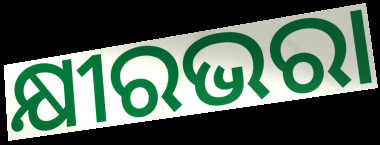
କ୍ଷୀରଭରା